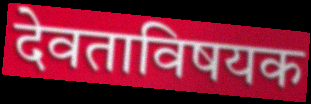
देवताविषयक